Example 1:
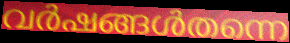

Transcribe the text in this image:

വർഷങ്ങൾതന്നെ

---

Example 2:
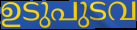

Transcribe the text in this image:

ഉടുപുടവ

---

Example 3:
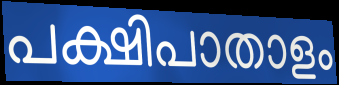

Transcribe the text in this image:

പക്ഷിപാതാളം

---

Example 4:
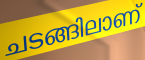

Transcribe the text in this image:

ചടങ്ങിലാണ്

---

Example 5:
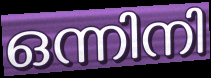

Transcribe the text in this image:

ഒന്നിനി